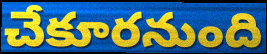
చేకూరనుంది